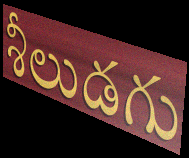
శీలుడగు